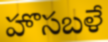
హొసబళే